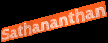
Sathananthan